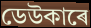
ডেউকাৰে